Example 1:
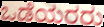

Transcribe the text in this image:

ಒಡೆಯರರು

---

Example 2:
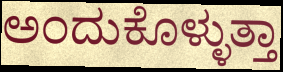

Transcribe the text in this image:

ಅಂದುಕೊಳ್ಳುತ್ತಾ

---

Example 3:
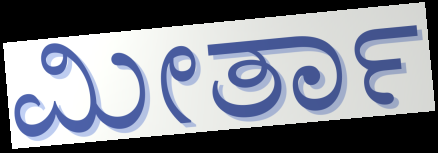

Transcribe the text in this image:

ಮೀರ್ತಾ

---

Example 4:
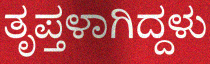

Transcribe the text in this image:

ತೃಪ್ತಳಾಗಿದ್ದಳು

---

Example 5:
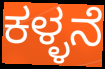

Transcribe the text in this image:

ಕಳ್ಳನೆ